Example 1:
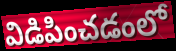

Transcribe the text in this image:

విడిపించడంలో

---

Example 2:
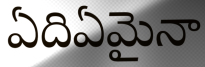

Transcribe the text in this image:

ఏదిఏమైనా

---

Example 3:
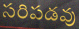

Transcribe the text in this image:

సరిపడవు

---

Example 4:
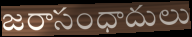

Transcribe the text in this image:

జరాసంధాదులు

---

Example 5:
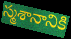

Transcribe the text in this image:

స్మశానానికి